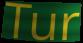
Tur